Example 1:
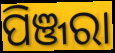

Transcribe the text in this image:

ପିଞ୍ଜରା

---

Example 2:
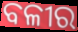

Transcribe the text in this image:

ବଳୀର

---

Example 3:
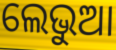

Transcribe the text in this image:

ଲେଭୁଆ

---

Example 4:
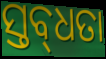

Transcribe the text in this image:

ସ୍ତବ୍‌ଧତା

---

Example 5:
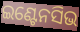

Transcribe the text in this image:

ଇଣ୍ଟେନସିଭ